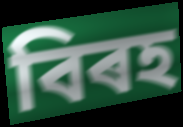
বিৰহ